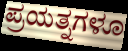
ಪ್ರಯತ್ನಗಳೂ